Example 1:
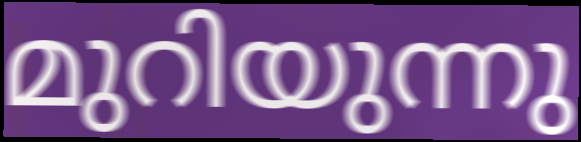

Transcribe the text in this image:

മുറിയുന്നു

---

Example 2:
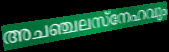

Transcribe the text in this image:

അചഞ്ചലസ്നേഹവും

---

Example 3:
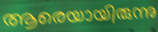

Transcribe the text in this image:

ആരെയായിരുന്നു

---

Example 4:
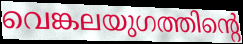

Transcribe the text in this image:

വെങ്കലയുഗത്തിന്റെ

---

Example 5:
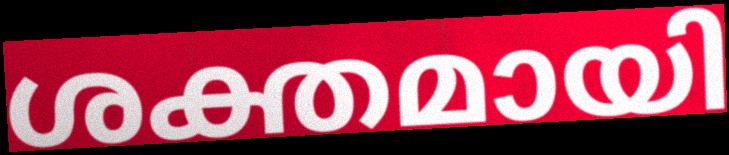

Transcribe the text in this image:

ശക്തമായി